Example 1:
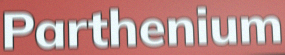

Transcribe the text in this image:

Parthenium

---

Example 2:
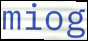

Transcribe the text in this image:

miog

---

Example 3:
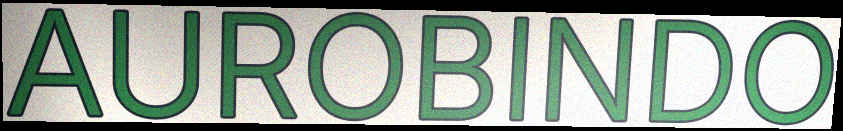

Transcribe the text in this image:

AUROBINDO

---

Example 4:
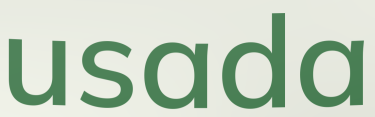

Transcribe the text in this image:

usada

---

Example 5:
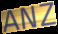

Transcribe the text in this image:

ANZ